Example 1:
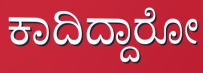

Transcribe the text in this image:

ಕಾದಿದ್ದಾರೋ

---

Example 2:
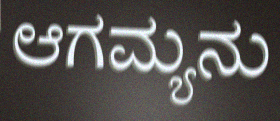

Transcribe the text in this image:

ಆಗಮ್ಯನು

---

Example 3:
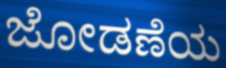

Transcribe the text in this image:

ಜೋಡಣೆಯ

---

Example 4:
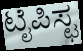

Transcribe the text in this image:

ಟೈಪಿಸ್ಟ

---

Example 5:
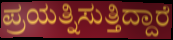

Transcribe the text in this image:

ಪ್ರಯತ್ನಿಸುತ್ತಿದ್ದಾರೆ